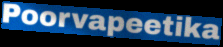
Poorvapeetika